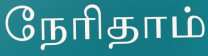
நேரிதாம்